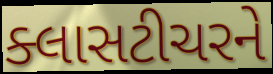
ક્લાસટીચરને